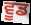
ਵੂਡ